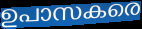
ഉപാസകരെ